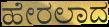
ಹೇರಲಾದ